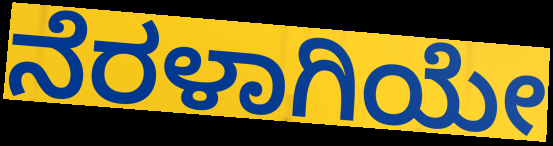
ನೆರಳಾಗಿಯೇ